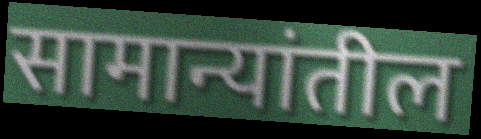
सामान्यांतील